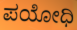
ಪಯೋಧಿ